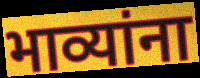
भाव्यांना